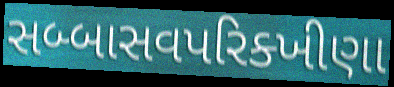
સબ્બાસવપરિક્ખીણા